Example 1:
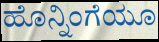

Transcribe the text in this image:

ಹೊನ್ನಿಂಗೆಯೂ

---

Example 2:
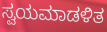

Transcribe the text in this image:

ಸ್ವಯಮಾಡಳಿತ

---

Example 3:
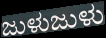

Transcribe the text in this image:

ಜುಳುಜುಳು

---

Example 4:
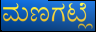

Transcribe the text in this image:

ಮಣಗಟ್ಲೆ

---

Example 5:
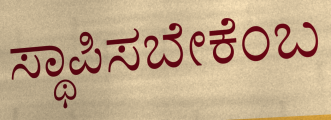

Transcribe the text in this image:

ಸ್ಥಾಪಿಸಬೇಕೆಂಬ